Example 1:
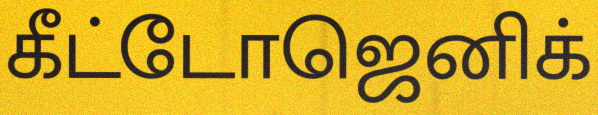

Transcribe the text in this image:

கீட்டோஜெனிக்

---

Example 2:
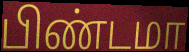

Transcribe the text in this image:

பிண்டமா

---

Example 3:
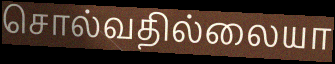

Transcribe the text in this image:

சொல்வதில்லையா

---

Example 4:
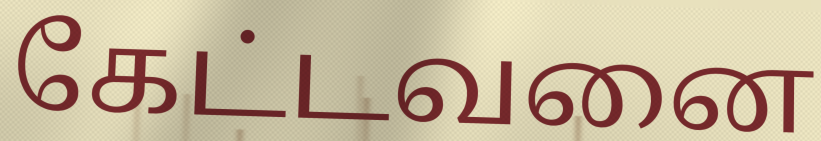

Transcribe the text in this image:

கேட்டவனை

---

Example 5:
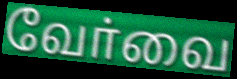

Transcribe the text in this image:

வேர்வை